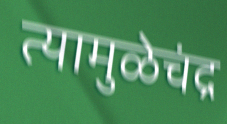
त्यामुळेचंद्र